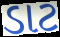
ડાટ